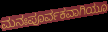
ಮನಃಪೂರ್ವಕವಾಗಿಯೂ